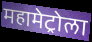
महामेट्रोला